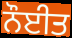
ਨੌਈਤ